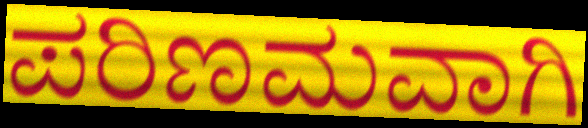
ಪರಿಣಮವಾಗಿ